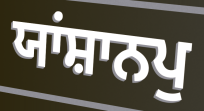
ਯਾਂਸ਼ਾਨਪੁ